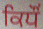
ਕਿਧੌਂ